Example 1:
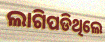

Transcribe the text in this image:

ଲାଗିପଡିଥିଲେ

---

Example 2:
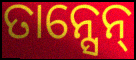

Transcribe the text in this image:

ତାନ୍ସେନ୍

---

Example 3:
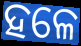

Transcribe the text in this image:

ହଳେ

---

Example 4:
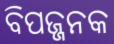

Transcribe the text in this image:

ବିପଜ୍ଜନକ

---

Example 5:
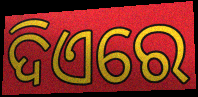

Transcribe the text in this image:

ଦିଏରେ